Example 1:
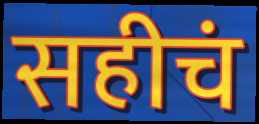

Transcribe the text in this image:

सहीचं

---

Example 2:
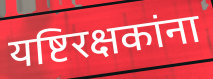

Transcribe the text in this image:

यष्टिरक्षकांना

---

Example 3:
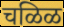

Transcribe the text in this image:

चळिळ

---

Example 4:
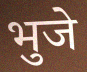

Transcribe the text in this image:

भुजे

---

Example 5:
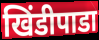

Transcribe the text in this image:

खिंडीपाडा